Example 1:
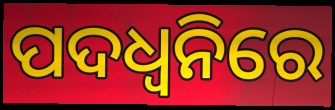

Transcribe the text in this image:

ପଦଧ୍ୱନିରେ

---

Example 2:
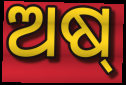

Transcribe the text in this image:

ଅଷ୍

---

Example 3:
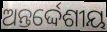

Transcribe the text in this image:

ଅନ୍ତର୍ଦ୍ଦେଶୀୟ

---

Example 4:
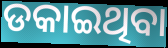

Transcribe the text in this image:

ଡକାଇଥିବା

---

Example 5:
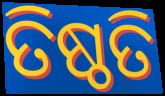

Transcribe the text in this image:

ତିଷ୍ଠତି